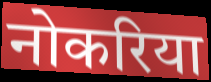
नोकरिया